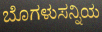
ಬೊಗಳುಸನ್ನಿಯ